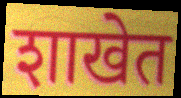
शाखेत